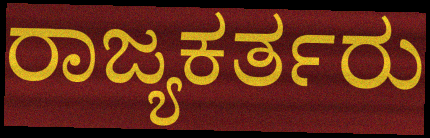
ರಾಜ್ಯಕರ್ತರು